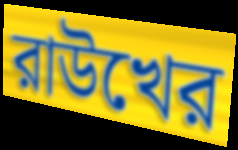
রাউখের